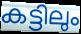
കട്ടിലും